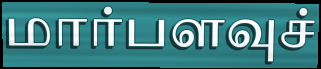
மார்பளவுச்